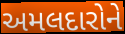
અમલદારોને